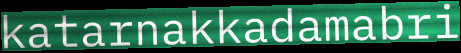
katarnakkadamabri